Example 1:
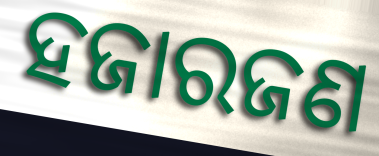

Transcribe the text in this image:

ହଜାରଜଣ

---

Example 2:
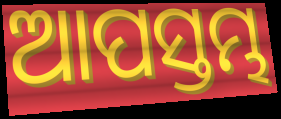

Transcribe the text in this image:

ଆପସ୍ତମ୍ଭ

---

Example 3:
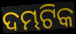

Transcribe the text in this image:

ଦମ୍ଭଟିକ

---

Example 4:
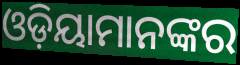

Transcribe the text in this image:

ଓଡ଼ିୟାମାନଙ୍କର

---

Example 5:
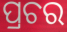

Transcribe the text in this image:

ପ୍ରଚର